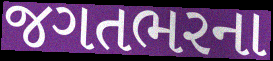
જગતભરના